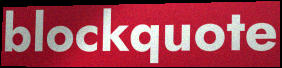
blockquote